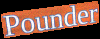
Pounder